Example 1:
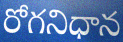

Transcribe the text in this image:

రోగనిధాన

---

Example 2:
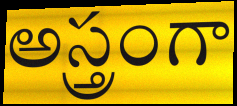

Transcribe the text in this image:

అస్త్రంగా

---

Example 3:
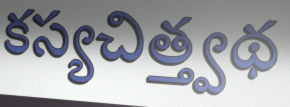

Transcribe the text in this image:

కస్యచిత్త్వథ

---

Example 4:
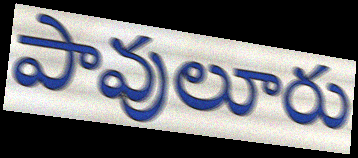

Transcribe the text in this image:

పావులూరు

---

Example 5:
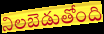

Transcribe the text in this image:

నిలబెడుతోంది